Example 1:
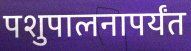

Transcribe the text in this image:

पशुपालनापर्यंत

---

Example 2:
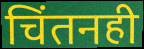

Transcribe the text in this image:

चिंतनही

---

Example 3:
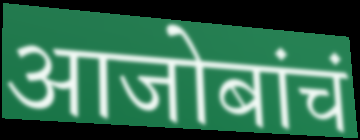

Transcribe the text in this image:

आजोबांचं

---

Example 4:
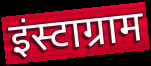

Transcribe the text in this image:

इंस्टाग्राम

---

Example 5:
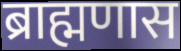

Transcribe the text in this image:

ब्राह्मणास